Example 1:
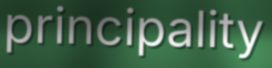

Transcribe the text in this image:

principality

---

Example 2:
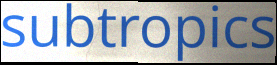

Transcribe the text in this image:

subtropics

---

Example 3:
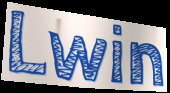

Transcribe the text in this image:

Lwin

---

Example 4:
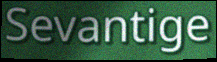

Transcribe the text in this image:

Sevantige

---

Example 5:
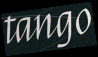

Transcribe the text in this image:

tango